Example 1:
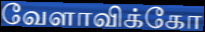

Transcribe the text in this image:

வேளாவிக்கோ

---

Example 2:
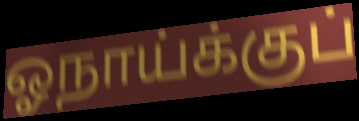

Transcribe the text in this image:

ஓநாய்க்குப்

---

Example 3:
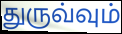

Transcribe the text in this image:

துருவ்வும்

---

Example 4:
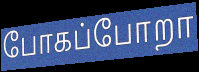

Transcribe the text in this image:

போகப்போறா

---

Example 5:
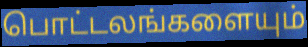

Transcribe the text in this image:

பொட்டலங்களையும்